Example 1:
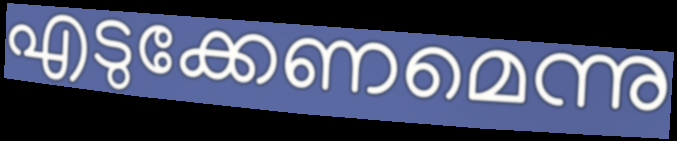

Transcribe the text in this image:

എടുക്കേണമെന്നു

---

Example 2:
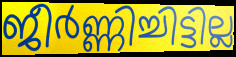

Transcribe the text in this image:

ജീർണ്ണിച്ചിട്ടില്ല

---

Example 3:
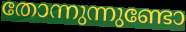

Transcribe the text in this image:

തോന്നുന്നുണ്ടോ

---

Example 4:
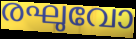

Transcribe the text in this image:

രഘുവോ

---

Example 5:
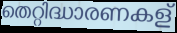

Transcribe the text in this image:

തെറ്റിദ്ധാരണകള്